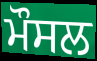
ਮੌਸਲ